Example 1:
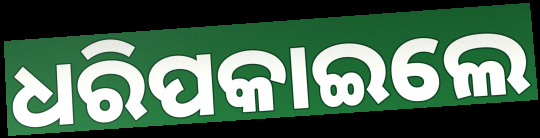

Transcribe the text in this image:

ଧରିପକାଇଲେ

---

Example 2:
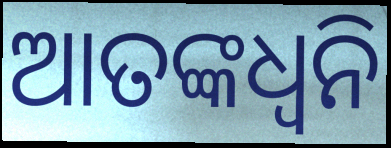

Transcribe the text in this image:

ଆତଙ୍କଧ୍ଵନି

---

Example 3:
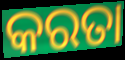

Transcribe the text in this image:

କରତା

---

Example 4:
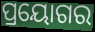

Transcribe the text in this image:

ପ୍ରୟୋଗର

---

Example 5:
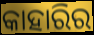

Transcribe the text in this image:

କାହାରିର